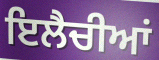
ਇਲੈਚੀਆਂ